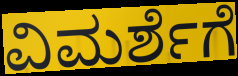
ವಿಮರ್ಶೆಗೆ